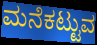
ಮನೆಕಟ್ಟುವ